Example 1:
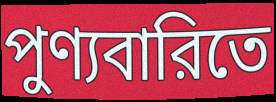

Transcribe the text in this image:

পুণ্যবারিতে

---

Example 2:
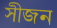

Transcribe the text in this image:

সীজন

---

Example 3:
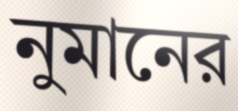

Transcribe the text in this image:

নুমানের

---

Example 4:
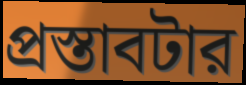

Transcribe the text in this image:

প্রস্তাবটার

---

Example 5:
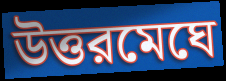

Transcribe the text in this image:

উত্তরমেঘে